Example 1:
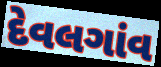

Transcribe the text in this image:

દેવલગાંવ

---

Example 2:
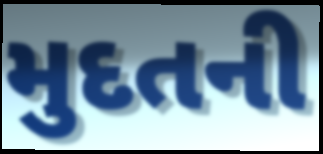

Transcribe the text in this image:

મુદતની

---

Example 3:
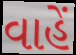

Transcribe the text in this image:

વાહેં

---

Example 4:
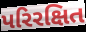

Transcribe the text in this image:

પરિરક્ષિત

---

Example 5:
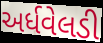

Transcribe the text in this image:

અર્ધવેલડી